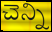
చెన్ని